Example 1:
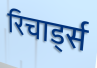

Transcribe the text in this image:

रिचार्ड्स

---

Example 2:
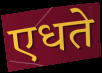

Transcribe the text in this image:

एधते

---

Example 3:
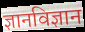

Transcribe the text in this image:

ज्ञानविज्ञान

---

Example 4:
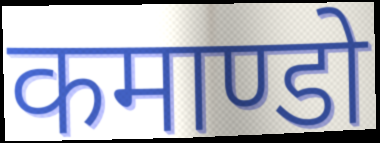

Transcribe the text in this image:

कमाण्डो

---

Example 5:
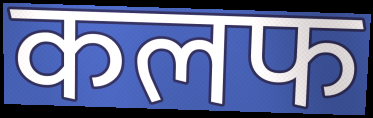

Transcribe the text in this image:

कलफ